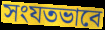
সংযতভাবে